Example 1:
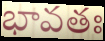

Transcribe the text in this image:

భావతః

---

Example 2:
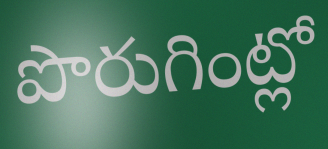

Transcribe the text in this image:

పొరుగింట్లో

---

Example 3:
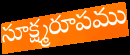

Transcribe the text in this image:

సూక్ష్మరూపము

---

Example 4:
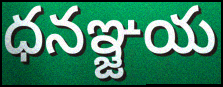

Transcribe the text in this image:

ధనఞ్జయ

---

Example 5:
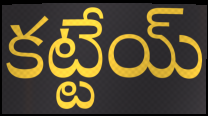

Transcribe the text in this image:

కట్టేయ్